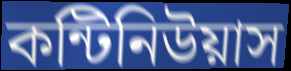
কন্টিনিউয়াস